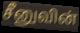
சீனுவின்